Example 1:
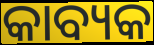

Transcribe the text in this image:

କାବ୍ୟକ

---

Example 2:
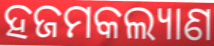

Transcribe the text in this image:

ହଜମକଲ୍ୟାଣ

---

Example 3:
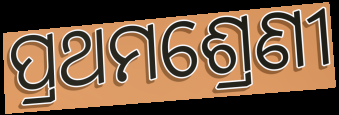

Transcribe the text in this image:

ପ୍ରଥମଶ୍ରେଣୀ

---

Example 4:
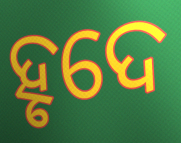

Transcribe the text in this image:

ହୃଦେ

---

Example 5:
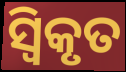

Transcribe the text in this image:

ସ୍ୱିକୃତ